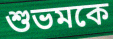
শুভমকে